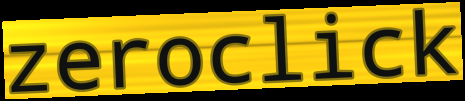
zeroclick